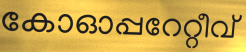
കോഓപ്പറേറ്റീവ്